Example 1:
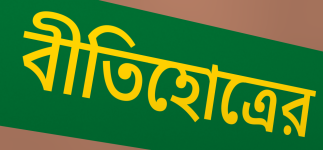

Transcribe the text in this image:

বীতিহোত্রের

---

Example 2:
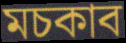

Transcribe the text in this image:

মচকাব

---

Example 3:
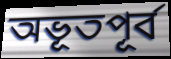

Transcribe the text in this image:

অভূতপূর্ব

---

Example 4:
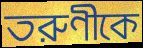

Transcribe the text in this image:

তরুণীকে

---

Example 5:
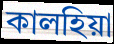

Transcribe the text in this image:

কালহিয়া